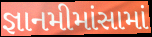
જ્ઞાનમીમાંસામાં